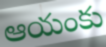
ఆయంకు